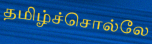
தமிழ்ச்சொல்லே